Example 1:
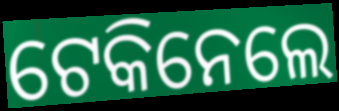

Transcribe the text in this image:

ଟେକିନେଲେ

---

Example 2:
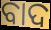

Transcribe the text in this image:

ବାଦ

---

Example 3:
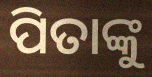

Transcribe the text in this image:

ପିତାଙ୍କୁ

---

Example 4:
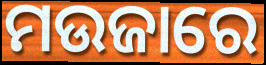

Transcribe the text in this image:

ମଉଜାରେ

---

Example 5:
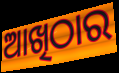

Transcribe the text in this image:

ଆଖିଠାର